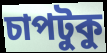
চাপটুকু